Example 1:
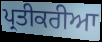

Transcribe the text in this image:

ਪ੍ਰਤੀਕਰੀਆ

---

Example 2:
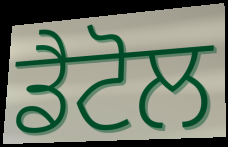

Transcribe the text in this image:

ਡੈਟੋਲ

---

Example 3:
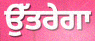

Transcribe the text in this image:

ਉੱਤਰੇਗਾ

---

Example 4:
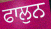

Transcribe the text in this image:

ਫਾਲੁਨ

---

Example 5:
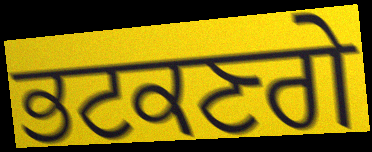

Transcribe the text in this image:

ਭਟਕਣਗੇ